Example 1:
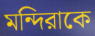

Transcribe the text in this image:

মন্দিরাকে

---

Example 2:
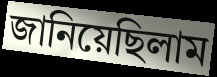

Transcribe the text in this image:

জানিয়েছিলাম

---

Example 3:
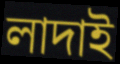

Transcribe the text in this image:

লাদাই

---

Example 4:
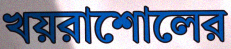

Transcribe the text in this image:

খয়রাশোলের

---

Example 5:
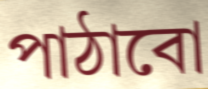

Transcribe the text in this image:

পাঠাবো